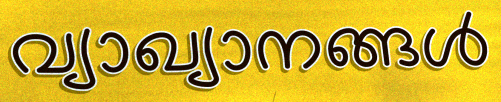
വ്യാഖ്യാനങ്ങൾ